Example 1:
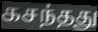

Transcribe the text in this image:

கசந்தது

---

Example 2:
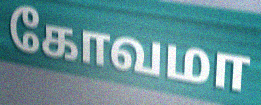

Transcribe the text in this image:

கோவமா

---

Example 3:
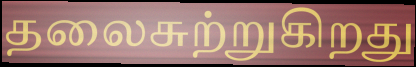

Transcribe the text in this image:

தலைசுற்றுகிறது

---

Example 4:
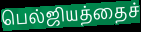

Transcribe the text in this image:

பெல்ஜியத்தைச்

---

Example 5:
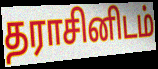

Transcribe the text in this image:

தராசினிடம்